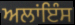
ਅਲਾਂਇੰਸ